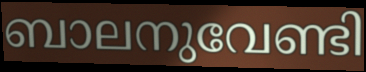
ബാലനുവേണ്ടി